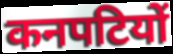
कनपटियों